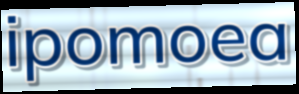
ipomoea